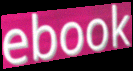
ebook